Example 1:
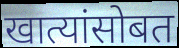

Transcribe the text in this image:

खात्यांसोबत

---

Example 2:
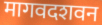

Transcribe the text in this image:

मागवदशवन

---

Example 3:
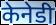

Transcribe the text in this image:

केनेडी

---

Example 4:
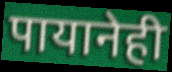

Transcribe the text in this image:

पायानेही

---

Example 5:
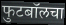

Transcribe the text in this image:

फुटबॉलचा